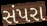
સંપરા